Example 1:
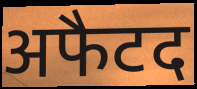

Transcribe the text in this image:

अफैटद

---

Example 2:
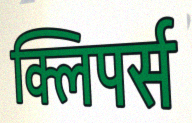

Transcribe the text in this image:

क्लिपर्स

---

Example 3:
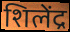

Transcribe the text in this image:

शिलेंद्र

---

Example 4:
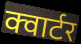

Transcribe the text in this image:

क्‍वार्टर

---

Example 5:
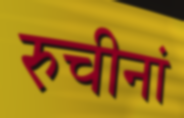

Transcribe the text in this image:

रुचीनां